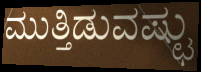
ಮುತ್ತಿಡುವಷ್ಟು